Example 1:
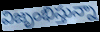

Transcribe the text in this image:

విజృంభిస్తున్నా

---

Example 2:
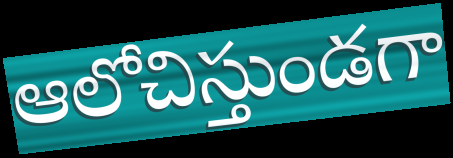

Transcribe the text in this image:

ఆలోచిస్తుండగా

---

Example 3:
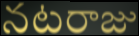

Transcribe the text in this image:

నటరాజు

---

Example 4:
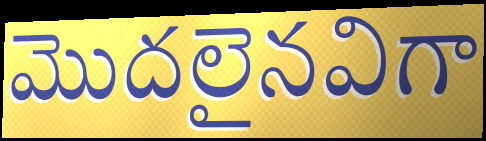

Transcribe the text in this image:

మొదలైనవిగా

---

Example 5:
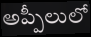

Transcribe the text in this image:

అప్పీలులో